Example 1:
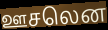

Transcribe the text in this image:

ஊசலென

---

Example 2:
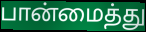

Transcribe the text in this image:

பான்மைத்து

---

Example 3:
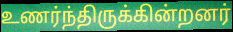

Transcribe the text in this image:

உணர்ந்திருக்கின்றனர்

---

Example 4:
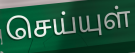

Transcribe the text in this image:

செய்யுள்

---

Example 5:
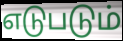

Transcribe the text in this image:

எடுபடும்